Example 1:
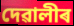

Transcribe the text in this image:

দেৱালীৰ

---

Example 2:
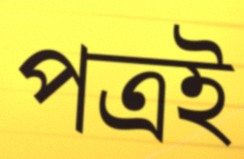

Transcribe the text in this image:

পত্ৰই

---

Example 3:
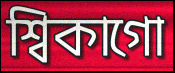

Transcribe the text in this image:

শ্বিকাগো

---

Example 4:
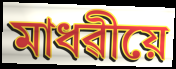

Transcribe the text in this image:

মাধৱীয়ে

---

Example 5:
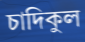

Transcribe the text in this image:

চাদিকুল